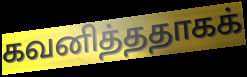
கவனித்ததாகக்